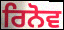
ਰਿਨੋਵ